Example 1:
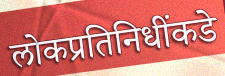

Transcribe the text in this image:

लोकप्रतिनिधींकडे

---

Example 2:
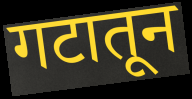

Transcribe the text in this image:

गटातून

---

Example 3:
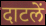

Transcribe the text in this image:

दाटलें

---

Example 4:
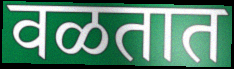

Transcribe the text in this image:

वळतात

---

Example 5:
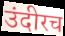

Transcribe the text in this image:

उंदीरच